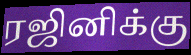
ரஜினிக்கு